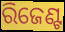
ରିଜେଣ୍ଟ